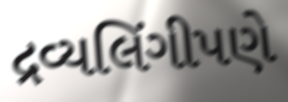
દ્રવ્યલિંગીપણે